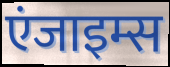
एंजाइम्‍स